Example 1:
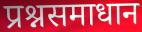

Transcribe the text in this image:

प्रश्नसमाधान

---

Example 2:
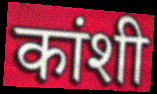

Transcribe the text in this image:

कांशी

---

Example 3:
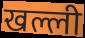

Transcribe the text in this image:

खल्ली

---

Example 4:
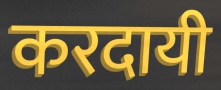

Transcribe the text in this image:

करदायी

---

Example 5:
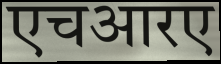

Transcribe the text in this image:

एचआरए